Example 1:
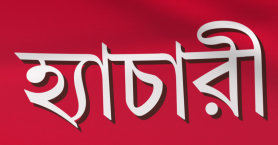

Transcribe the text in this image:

হ্যাচারী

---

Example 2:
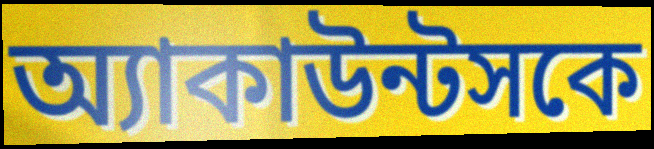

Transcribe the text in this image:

অ্যাকাউন্টসকে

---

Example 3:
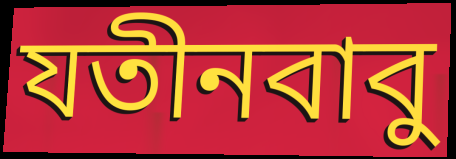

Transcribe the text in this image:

যতীনবাবু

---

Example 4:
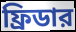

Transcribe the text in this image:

ফ্রিডার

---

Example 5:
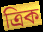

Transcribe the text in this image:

ত্রিক